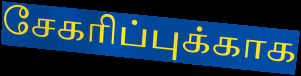
சேகரிப்புக்காக